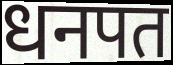
धनपत